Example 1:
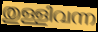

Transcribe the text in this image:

തുള്ളിവന്ന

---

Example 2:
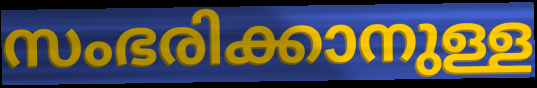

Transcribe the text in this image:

സംഭരിക്കാനുള്ള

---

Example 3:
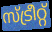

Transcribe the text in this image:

സ്ട്രീറ്റ്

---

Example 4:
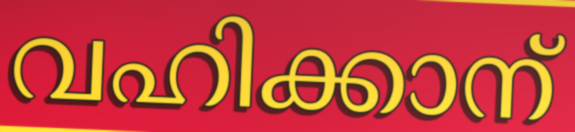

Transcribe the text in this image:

വഹിക്കാന്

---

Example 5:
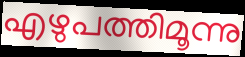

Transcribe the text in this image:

എഴുപത്തിമൂന്നു